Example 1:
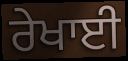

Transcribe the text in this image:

ਰੇਖਾਈ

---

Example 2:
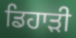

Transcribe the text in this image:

ਡਿਹਾੜੀ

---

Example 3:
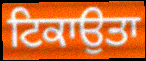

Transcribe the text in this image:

ਟਿਕਾਉਤਾ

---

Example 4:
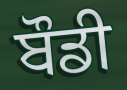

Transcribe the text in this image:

ਬੌਡੀ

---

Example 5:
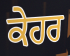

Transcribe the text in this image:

ਕੇਹਰ